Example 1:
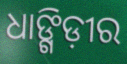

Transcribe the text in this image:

ଧାଙ୍ଗିଡ଼ୀର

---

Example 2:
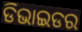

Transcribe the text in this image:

ଡିଭାଇଡର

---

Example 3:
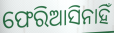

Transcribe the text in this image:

ଫେରିଆସିନାହିଁ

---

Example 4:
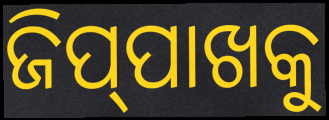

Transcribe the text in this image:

ଜିପ୍‌ପାଖକୁ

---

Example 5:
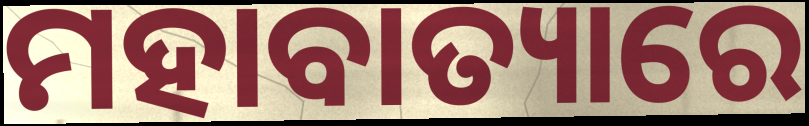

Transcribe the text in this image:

ମହାବାତ୍ୟାରେ